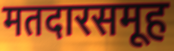
मतदारसमूह